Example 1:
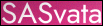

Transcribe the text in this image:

SASvata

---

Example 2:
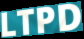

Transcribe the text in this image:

LTPD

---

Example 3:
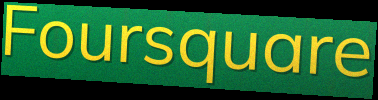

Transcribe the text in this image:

Foursquare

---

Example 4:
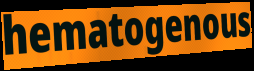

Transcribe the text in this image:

hematogenous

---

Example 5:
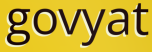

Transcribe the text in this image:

govyat